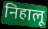
निहालू